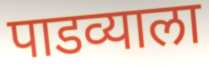
पाडव्याला